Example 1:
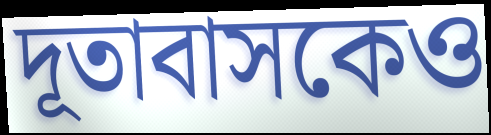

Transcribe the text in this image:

দূতাবাসকেও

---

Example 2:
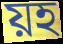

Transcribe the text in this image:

য়হ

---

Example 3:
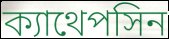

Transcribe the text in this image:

ক্যাথেপসিন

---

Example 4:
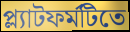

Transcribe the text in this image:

প্ল্যাটফর্মটিতে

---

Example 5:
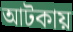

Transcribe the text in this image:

আটকায়